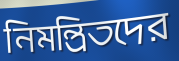
নিমন্ত্রিতদের